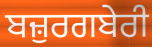
ਬਜ਼ੁਰਗਬੇਰੀ